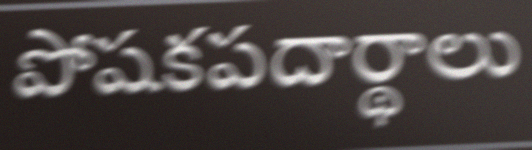
పోషకపదార్థాలు